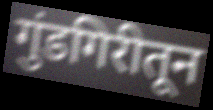
गुंडगिरीतून